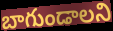
బాగుండాలని